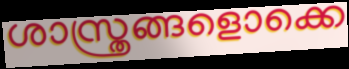
ശാസ്ത്രങ്ങളൊക്കെ